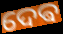
ଦେଵ